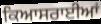
ਕਿਆਸਰਾਈਆਂ